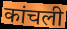
कांचली